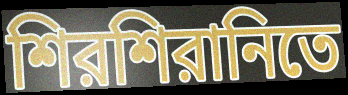
শিরশিরানিতে